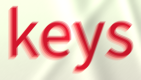
keys